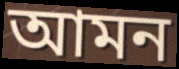
আমন